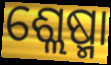
ଶ୍ଲେଷ୍ମା